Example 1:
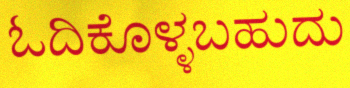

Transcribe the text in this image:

ಓದಿಕೊಳ್ಳಬಹುದು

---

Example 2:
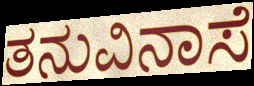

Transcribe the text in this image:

ತನುವಿನಾಸೆ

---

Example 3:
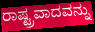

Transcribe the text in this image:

ರಾಷ್ಟ್ರವಾದವನ್ನು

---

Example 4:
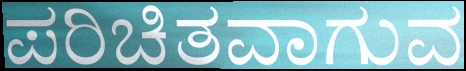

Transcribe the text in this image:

ಪರಿಚಿತವಾಗುವ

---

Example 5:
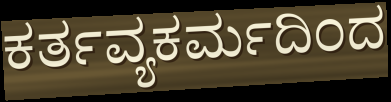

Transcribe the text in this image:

ಕರ್ತವ್ಯಕರ್ಮದಿಂದ